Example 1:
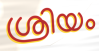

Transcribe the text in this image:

ശ്രിയം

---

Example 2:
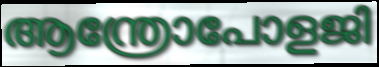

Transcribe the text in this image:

ആന്ത്രോപോളജി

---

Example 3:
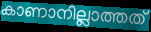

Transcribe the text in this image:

കാണാനില്ലാത്തത്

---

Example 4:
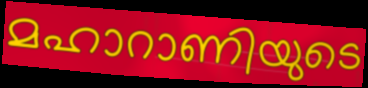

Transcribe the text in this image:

മഹാറാണിയുടെ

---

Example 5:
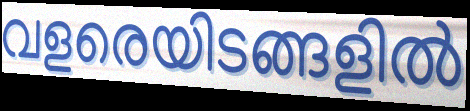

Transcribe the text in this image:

വളരെയിടങ്ങളിൽ